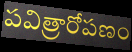
పవిత్రారోపణం